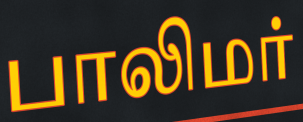
பாலிமர்